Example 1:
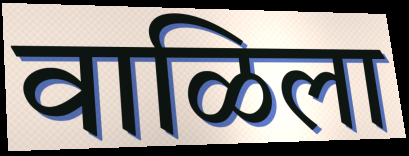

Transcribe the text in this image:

वाळिला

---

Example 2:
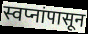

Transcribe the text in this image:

स्वप्नांपासून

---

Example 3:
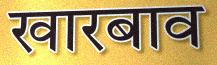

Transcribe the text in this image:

खारबाव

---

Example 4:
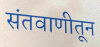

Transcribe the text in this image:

संतवाणीतून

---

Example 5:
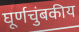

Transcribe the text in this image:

घूर्णचुंबकीय